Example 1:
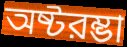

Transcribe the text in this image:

অষ্টরম্ভা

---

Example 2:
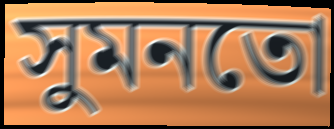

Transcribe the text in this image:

সুমনতো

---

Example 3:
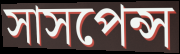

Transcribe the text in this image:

সাসপেন্স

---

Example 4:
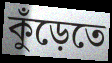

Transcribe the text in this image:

কুঁড়েতে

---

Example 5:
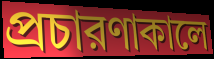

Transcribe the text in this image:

প্রচারণাকালে